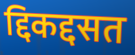
द्दिकद्दसत